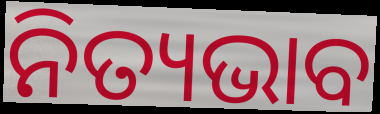
ନିତ୍ୟଭାବ